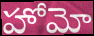
హోమో